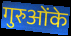
गुरुओंके